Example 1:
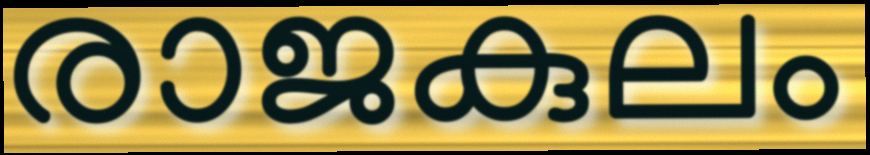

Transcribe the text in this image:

രാജകുലം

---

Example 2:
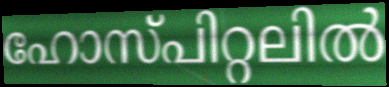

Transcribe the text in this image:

ഹോസ്പിറ്റലിൽ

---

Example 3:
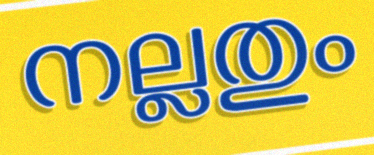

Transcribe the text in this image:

നല്ലതും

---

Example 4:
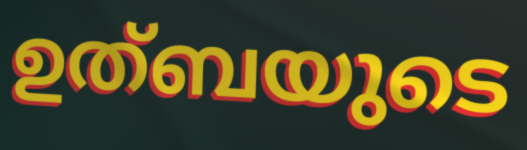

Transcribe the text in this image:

ഉത്ബയുടെ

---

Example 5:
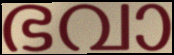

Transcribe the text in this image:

ഭവാ